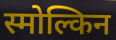
स्मोल्किन